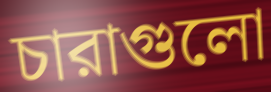
চারাগুলো